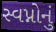
સ્વપ્નોનું